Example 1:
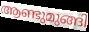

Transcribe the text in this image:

ആണ്ടുമുങ്ങി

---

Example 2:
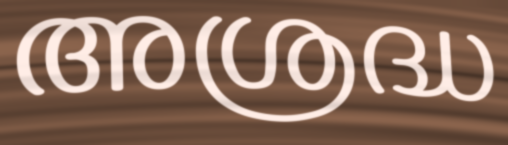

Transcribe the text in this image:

അശ്രദ്ധ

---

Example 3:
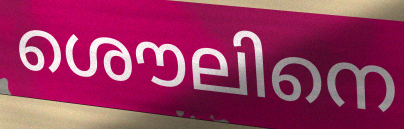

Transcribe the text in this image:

ശൌലിനെ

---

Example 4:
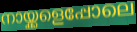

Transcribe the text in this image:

നായ്ക്കളെപ്പോലെ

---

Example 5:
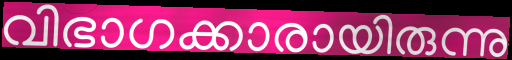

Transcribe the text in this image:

വിഭാഗക്കാരായിരുന്നു